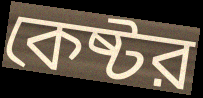
কেষ্টর